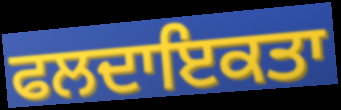
ਫਲਦਾਇਕਤਾ